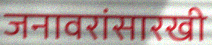
जनावरांसारखी